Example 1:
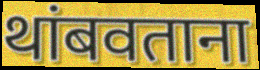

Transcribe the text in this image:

थांबवताना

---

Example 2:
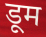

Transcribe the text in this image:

डूम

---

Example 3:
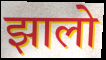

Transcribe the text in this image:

झालो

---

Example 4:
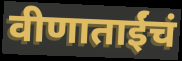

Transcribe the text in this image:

वीणाताईंचं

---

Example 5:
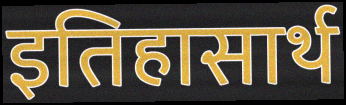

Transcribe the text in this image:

इतिहासार्थ